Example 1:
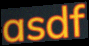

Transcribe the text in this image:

asdf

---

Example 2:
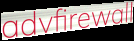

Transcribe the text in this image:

advfirewall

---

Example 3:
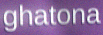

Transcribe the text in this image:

ghatona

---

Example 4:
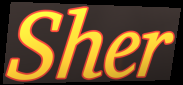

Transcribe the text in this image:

Sher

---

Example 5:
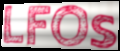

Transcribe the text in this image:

LFOs